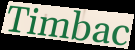
Timbac